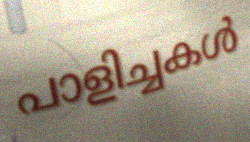
പാളിച്ചകൾ